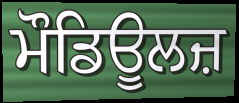
ਮੌਡਿਊਲਜ਼